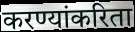
करण्यांकरिता